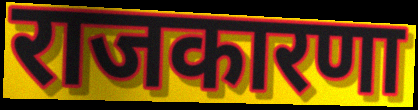
राजकारणा